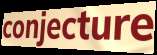
conjecture